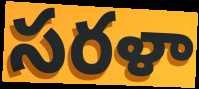
సరళా